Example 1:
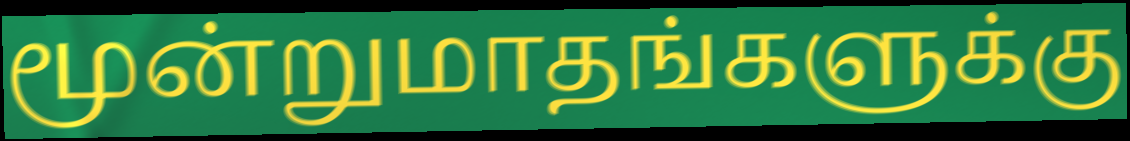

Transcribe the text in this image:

மூன்றுமாதங்களுக்கு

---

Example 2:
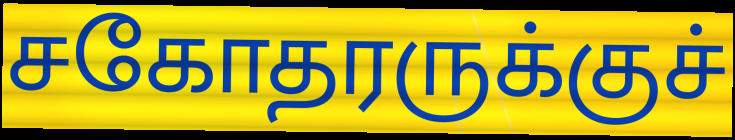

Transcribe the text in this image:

சகோதரருக்குச்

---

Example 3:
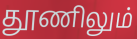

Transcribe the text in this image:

தூணிலும்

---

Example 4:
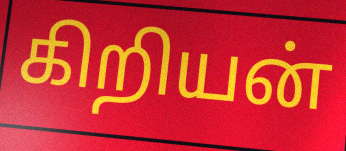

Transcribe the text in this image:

கிறியன்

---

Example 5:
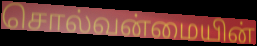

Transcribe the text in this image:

சொல்வன்மையின்